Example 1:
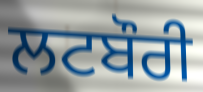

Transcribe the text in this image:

ਲਟਬੌਰੀ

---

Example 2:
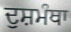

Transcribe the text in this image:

ਦੁਸ਼ਮੰਥਾ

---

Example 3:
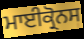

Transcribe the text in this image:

ਮਾਈਕ੍ਰੋਨਸ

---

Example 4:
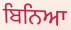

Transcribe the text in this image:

ਬਿਨਿਆ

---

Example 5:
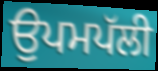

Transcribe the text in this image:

ਉਪਮਪੱਲੀ